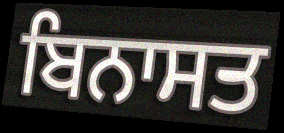
ਬਿਨਾਸਤ